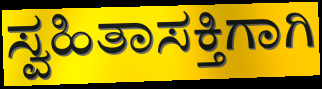
ಸ್ವಹಿತಾಸಕ್ತಿಗಾಗಿ